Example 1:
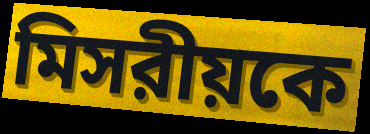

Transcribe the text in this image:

মিসরীয়কে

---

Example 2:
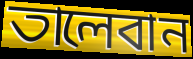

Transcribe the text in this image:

তালেবান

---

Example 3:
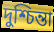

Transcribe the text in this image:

দুশ্চিন্তা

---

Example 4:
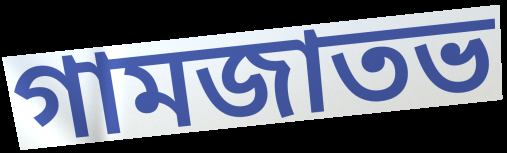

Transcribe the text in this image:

গামজাতভ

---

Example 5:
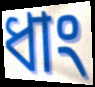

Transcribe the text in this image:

ধাং